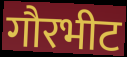
गौरभीट